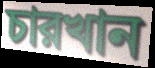
চারখান